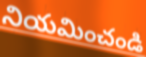
నియమించండి